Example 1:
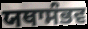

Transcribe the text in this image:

ਯਥਾਸੰਭਵ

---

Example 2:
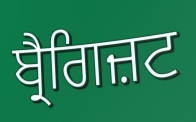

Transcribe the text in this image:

ਬ੍ਰੈਗਿਜ਼ਟ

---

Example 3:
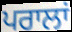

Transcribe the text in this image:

ਪਰਾਲਾਂ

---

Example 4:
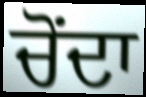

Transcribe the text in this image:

ਚੋਂਦਾ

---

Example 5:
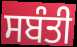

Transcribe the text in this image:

ਸਬੰਤੀ